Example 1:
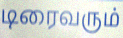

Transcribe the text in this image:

டிரைவரும்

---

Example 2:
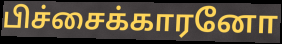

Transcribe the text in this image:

பிச்சைக்காரனோ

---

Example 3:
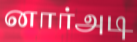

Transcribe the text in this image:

னார்அடி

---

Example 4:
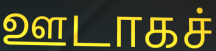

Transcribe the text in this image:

ஊடாகச்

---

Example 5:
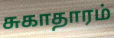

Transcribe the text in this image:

சுகாதாரம்